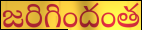
జరిగిందంత